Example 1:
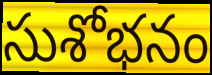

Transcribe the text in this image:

సుశోభనం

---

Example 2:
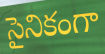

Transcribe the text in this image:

సైనికంగా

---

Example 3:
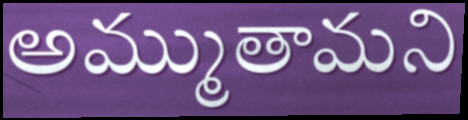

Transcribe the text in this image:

అమ్ముతామని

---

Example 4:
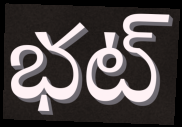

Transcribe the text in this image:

భట్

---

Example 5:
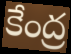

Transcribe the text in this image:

కేంద్ర